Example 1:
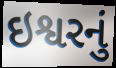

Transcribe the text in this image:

ઇશ્વરનું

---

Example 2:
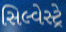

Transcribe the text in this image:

સિલ્વેસ્ટ્રે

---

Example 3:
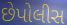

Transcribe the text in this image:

છેપોલીસ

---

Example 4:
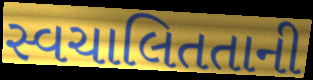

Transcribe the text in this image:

સ્વચાલિતતાની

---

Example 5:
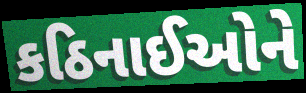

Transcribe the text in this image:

કઠિનાઈઓને